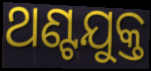
ଥଣ୍ଟଯୁକ୍ତ